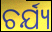
ଚର୍ଯ୍ୟ